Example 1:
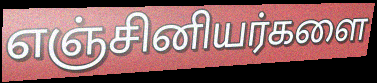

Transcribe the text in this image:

எஞ்சினியர்களை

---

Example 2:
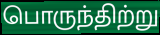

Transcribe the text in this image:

பொருந்திற்று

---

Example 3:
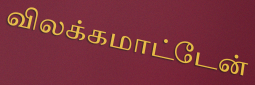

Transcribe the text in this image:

விலக்கமாட்டேன்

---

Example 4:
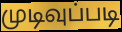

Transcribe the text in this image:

முடிவுப்படி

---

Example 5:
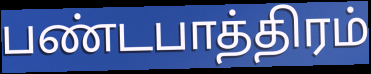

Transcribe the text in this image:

பண்டபாத்திரம்